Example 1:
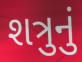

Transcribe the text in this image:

શત્રુનું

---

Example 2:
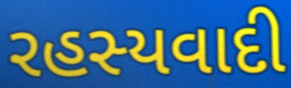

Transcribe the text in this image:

રહસ્યવાદી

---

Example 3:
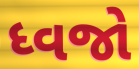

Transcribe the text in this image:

ધ્વજો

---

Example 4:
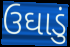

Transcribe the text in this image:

ઉઘાડું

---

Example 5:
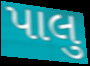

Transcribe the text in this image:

પાલુ